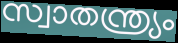
സ്വാതന്ത്ര്യം